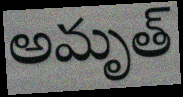
అమృత్